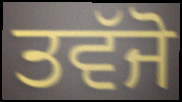
ਤਵੱਜੋ